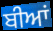
ਬੀਆਂ